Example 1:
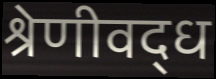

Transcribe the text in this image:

श्रेणीवद्ध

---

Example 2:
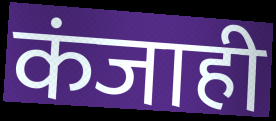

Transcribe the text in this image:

कंजाही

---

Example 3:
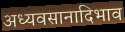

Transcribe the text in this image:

अध्यवसानादिभाव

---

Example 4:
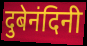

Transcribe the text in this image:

दुबेनंदिनी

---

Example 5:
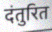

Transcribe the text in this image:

दंतुरित